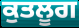
ਕੁਤਲੂਗ